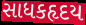
સાધકહૃદય